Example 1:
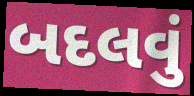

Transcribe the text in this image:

બદલવું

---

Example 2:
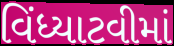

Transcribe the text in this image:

વિંધ્યાટવીમાં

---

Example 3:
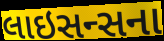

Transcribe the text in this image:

લાઇસન્સના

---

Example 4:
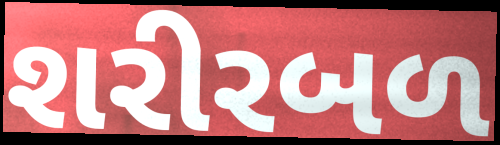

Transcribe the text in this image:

શરીરબળ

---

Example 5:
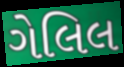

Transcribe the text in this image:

ગેલિલ